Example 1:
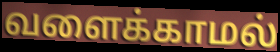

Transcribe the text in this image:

வளைக்காமல்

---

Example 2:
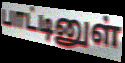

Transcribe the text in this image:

பாட்டினுள்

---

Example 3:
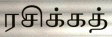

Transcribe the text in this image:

ரசிக்கத்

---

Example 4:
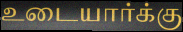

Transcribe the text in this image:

உடையார்க்கு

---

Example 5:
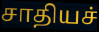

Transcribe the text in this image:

சாதியச்